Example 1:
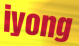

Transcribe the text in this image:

iyong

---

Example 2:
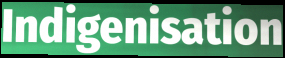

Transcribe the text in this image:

Indigenisation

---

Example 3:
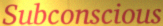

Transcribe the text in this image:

Subconscious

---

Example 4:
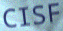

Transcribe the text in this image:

CISF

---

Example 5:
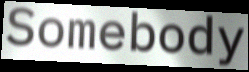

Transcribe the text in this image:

Somebody